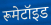
रूमेटॉइड